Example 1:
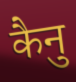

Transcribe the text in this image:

कैनु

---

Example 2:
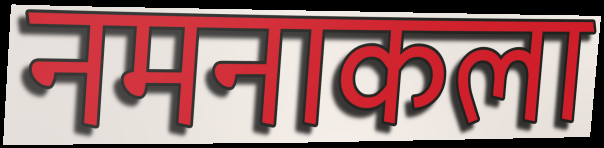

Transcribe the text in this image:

नमनाकला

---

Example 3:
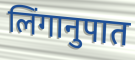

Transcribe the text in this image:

लिंगानुपात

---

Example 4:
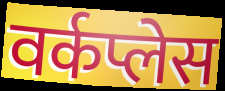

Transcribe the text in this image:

वर्कप्लेस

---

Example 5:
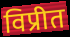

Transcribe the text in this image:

विप्रीत